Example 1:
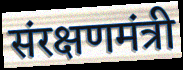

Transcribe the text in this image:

संरक्षणमंत्री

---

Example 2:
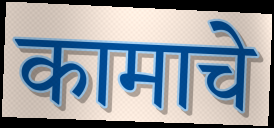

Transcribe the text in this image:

कामाचे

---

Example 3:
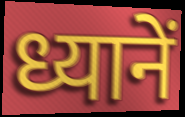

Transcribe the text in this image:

ध्यानें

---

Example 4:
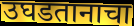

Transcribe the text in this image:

उघडतानाचा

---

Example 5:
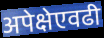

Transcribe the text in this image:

अपेक्षेएवढी